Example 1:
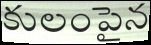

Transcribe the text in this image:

కులంపైన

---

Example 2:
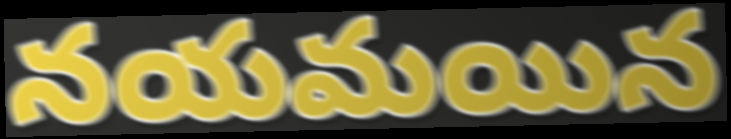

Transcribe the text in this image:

నయమయిన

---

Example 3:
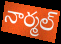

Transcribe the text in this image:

నార్మల్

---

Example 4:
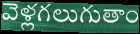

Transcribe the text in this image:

వెళ్లగలుగుతాం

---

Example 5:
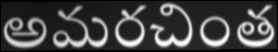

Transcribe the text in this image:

అమరచింత